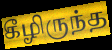
கீழிருந்த